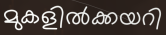
മുകളിൽക്കയറി